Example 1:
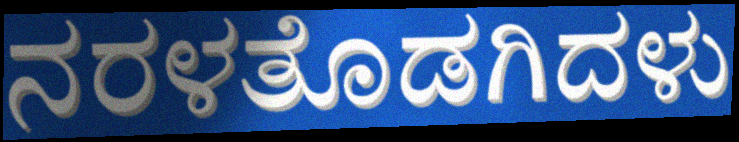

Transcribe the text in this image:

ನರಳತೊಡಗಿದಳು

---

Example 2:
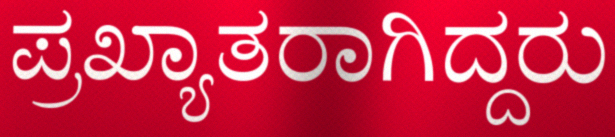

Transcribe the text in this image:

ಪ್ರಖ್ಯಾತರಾಗಿದ್ದರು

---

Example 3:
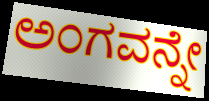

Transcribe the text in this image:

ಅಂಗವನ್ನೇ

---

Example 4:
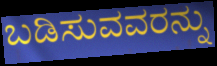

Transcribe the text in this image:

ಬಡಿಸುವವರನ್ನು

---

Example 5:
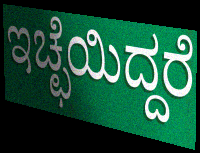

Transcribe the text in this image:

ಇಚ್ಛೆಯಿದ್ದರೆ